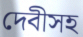
দেবীসহ